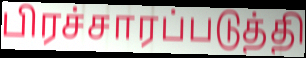
பிரச்சாரப்படுத்தி